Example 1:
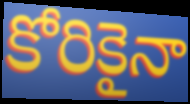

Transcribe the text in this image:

కోరికైనా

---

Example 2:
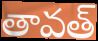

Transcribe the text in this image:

తావత్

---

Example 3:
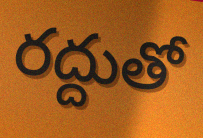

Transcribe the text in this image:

రద్దుతో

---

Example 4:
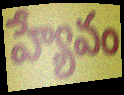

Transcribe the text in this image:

హ్యేవం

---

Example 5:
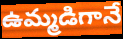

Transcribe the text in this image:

ఉమ్మడిగానే